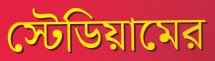
স্টেডিয়ামের